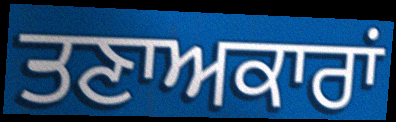
ਤਣਾਅਕਾਰਾਂ